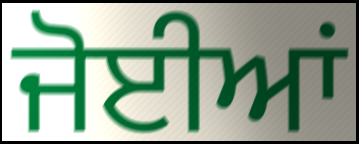
ਜੋਈਆਂ